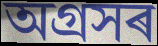
অগ্ৰসৰ